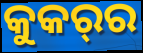
କୁକର୍‌ର